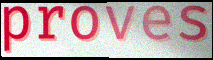
proves